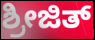
ಶ್ರೀಜಿತ್